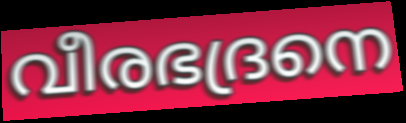
വീരഭദ്രനെ